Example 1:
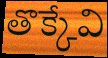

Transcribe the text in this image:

తొక్కేవి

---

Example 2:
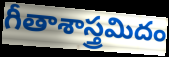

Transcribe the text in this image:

గీతాశాస్త్రమిదం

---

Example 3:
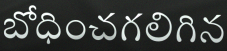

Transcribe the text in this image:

బోధించగలిగిన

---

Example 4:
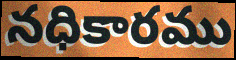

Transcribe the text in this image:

నధికారము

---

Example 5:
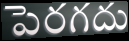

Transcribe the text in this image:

పెరగదు